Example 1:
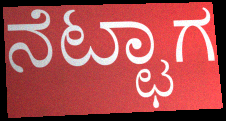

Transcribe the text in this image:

ನೆಟ್ಟಾಗ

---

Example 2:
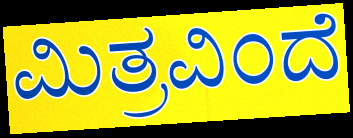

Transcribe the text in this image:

ಮಿತ್ರವಿಂದೆ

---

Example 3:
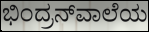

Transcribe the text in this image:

ಭಿಂದ್ರನ್‌ವಾಲೆಯ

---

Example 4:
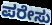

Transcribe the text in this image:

ಪರೇಸು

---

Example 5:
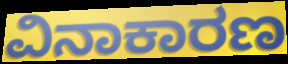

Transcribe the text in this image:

ವಿನಾಕಾರಣ